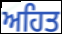
ਅਹਿਤ